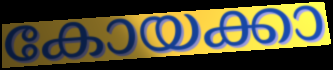
കോയക്കാ